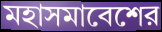
মহাসমাবেশের